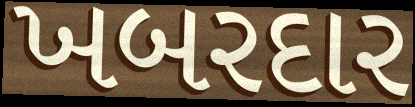
ખબરદાર